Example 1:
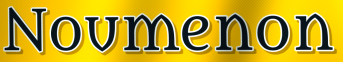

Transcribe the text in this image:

Noumenon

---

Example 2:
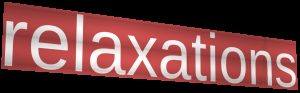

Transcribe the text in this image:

relaxations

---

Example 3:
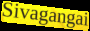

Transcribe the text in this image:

Sivagangai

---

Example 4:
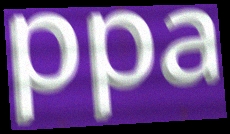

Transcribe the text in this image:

ppa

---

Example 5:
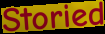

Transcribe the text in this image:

Storied